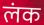
लंक